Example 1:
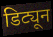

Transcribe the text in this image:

डिट्यून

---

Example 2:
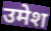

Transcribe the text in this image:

उमेश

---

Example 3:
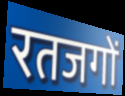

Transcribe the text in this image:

रतजगों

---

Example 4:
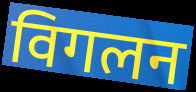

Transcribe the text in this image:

विगलन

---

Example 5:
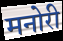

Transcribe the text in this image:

मनोरी